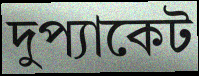
দুপ্যাকেট